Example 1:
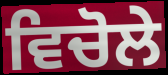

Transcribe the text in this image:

ਵਿਚੋਲੇ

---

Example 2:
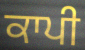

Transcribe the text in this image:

ਕਾਪੀ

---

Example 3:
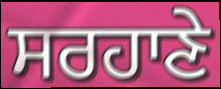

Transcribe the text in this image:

ਸਰਹਾਣੇ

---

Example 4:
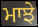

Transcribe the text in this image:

ਮਾਝੇ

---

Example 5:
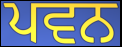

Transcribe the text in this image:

ਪਵਨ